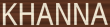
KHANNA